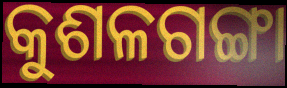
କୁଶଳଗଙ୍ଗା